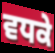
ਵਧਕੇ